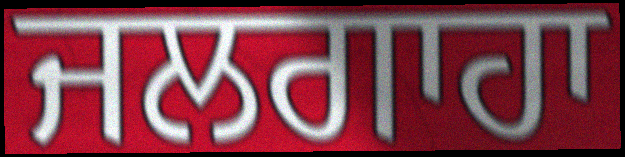
ਜਲਗਾਹਾ